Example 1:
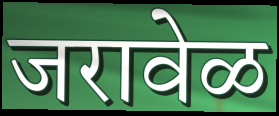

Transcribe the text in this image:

जरावेळ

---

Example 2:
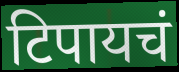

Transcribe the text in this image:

टिपायचं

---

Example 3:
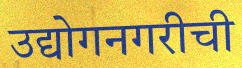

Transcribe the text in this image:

उद्योगनगरीची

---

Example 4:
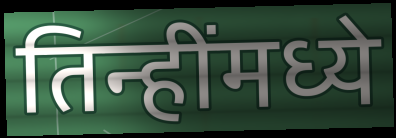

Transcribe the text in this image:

तिन्हींमध्ये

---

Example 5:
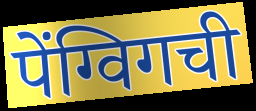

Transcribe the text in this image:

पेंग्विगची